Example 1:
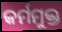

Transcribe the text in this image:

କର୍ମମୁକ୍ତ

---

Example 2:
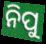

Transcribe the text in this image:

ନିପୁ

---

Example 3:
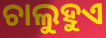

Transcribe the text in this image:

ଚାଲୁହୁଏ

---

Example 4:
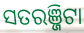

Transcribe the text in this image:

ସତରଞ୍ଜିଟା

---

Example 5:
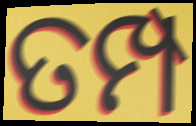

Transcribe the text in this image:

ତମ୍ପ